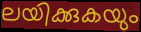
ലയിക്കുകയും